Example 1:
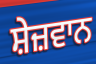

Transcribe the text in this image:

ਸ਼ੇਜ਼ਵਾਨ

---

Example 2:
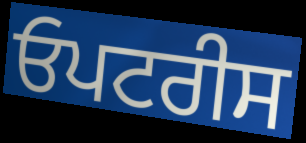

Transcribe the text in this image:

ਓਪਟਰੀਸ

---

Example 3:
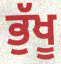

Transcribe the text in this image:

ਭੁੱਖੂ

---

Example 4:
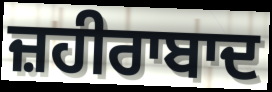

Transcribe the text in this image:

ਜ਼ਹੀਰਾਬਾਦ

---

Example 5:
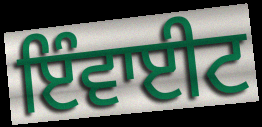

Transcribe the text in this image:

ਇੰਵਾਈਟ